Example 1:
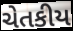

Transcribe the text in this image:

ચેતકીય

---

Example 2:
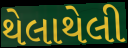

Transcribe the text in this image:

થેલાથેલી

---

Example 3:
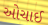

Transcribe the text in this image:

ઓચાઈ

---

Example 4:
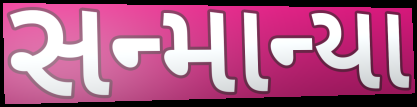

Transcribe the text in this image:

સન્માન્યા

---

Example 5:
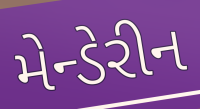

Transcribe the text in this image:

મેન્ડેરીન